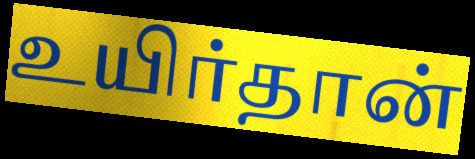
உயிர்தான்